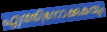
എത്തിനോക്കുകയും